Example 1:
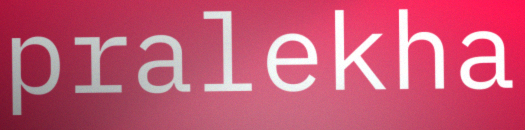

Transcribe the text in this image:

pralekha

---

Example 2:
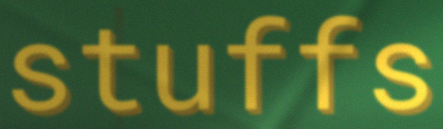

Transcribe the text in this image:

stuffs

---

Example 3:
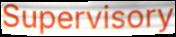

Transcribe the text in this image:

Supervisory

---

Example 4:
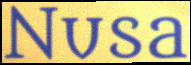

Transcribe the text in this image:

Nusa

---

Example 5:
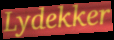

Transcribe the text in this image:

Lydekker